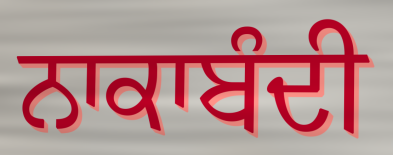
ਨਾਕਾਬੰਦੀ